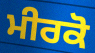
ਮੀਰਕੋ